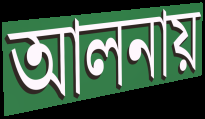
আলনায়